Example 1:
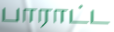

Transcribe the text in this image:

பாராட்ட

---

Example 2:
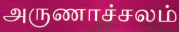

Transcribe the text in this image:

அருணாச்சலம்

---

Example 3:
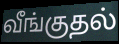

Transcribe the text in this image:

வீங்குதல்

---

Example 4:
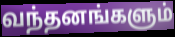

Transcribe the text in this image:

வந்தனங்களும்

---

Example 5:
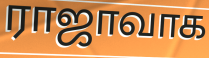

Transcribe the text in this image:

ராஜாவாக